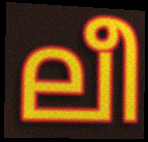
ലീ